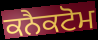
ਕਨੈਕਟੋਮ